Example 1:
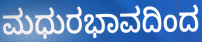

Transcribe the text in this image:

ಮಧುರಭಾವದಿಂದ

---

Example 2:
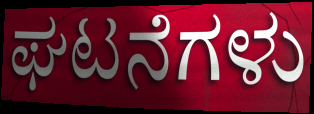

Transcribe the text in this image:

ಘಟನೆಗಳು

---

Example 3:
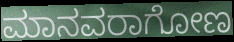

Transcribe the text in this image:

ಮಾನವರಾಗೋಣ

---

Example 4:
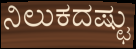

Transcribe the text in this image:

ನಿಲುಕದಷ್ಟು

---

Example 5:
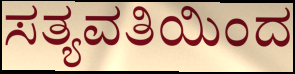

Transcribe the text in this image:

ಸತ್ಯವತಿಯಿಂದ